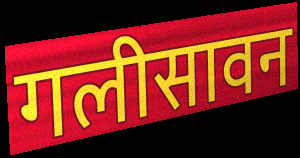
गलीसावन